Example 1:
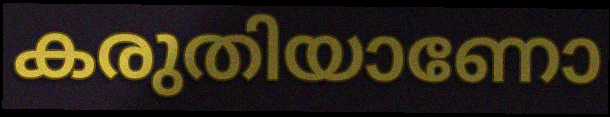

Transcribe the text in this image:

കരുതിയാണോ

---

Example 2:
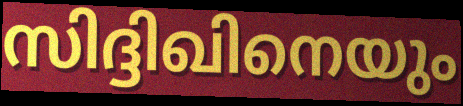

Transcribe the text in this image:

സിദ്ദിഖിനെയും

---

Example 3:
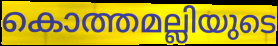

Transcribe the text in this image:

കൊത്തമല്ലിയുടെ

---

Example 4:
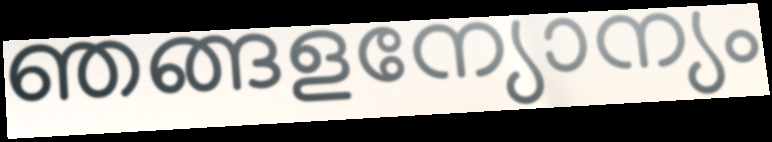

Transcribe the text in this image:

ഞങ്ങളന്യോന്യം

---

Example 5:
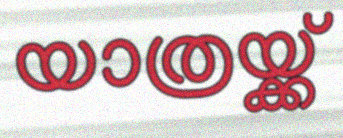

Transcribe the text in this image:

യാത്രയ്ക്ക്